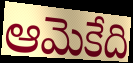
ఆమెకేది